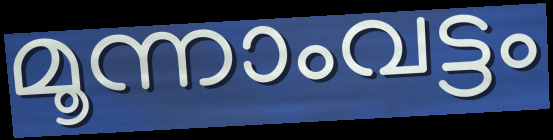
മൂന്നാംവട്ടം